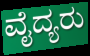
ವೈದ್ಯರು